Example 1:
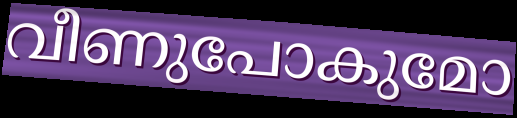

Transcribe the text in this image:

വീണുപോകുമോ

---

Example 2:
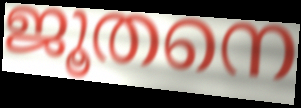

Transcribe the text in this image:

ജൂതനെ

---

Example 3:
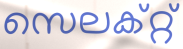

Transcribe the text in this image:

സെലക്റ്റ്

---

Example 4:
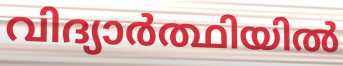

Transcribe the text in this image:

വിദ്യാർത്ഥിയിൽ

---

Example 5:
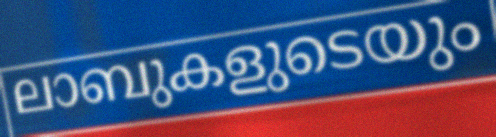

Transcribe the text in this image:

ലാബുകളുടെയും